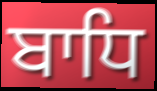
ਬਾਧਿ